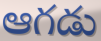
ఆగడు